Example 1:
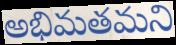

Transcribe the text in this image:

అభిమతమని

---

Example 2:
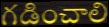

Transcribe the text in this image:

గడించాలి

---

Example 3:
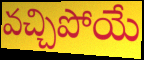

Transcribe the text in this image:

వచ్చిపోయే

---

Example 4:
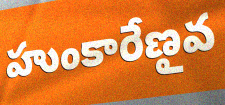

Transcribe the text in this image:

హుంకారేణౖవ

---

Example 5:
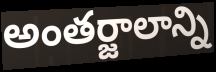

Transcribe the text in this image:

అంతర్జాలాన్ని